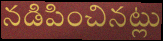
నడిపించినట్లు